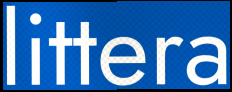
littera